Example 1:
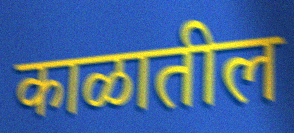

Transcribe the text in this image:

काळातील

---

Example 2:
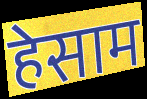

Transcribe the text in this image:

हेसाम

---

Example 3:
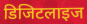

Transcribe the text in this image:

डिजिटलाइज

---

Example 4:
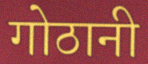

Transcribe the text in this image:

गोठानी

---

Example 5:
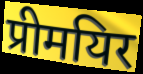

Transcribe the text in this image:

प्रीमयिर